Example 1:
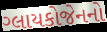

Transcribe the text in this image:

ગ્લાયકોજેનનો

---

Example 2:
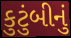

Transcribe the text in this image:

કુટુંબીનું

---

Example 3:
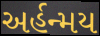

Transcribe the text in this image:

અર્હન્મય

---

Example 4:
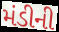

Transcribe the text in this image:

મંડીની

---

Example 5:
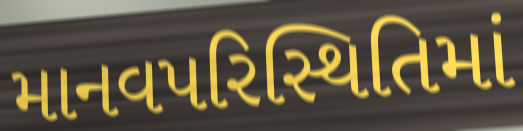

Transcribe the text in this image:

માનવપરિસ્થિતિમાં